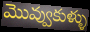
మొవ్వుకుళ్ళు